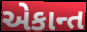
એકાન્ત